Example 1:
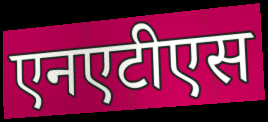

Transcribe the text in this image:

एनएटीएस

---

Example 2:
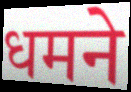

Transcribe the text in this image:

धमने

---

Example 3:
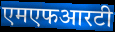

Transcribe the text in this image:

एमएफआरटी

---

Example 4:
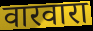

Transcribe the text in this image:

वारवारा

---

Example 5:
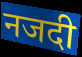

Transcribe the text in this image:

नजदी